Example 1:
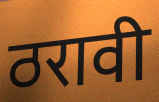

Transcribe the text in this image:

ठरावी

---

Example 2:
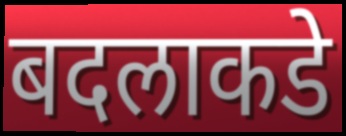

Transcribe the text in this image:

बदलाकडे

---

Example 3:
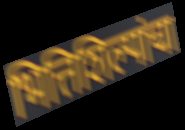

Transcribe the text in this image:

भित्तिशिल्पांचा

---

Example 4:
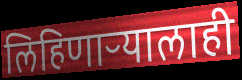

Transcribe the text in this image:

लिहिणाऱ्यालाही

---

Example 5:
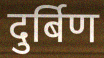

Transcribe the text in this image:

दुर्बिण